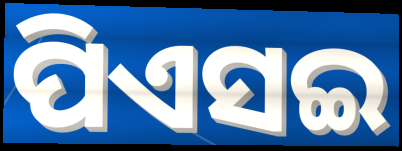
ପିଏସଇ